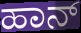
ಹಾನ್